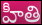
హీతి